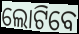
ଲୋଟିବେ